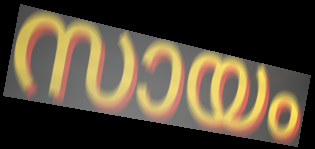
സായം